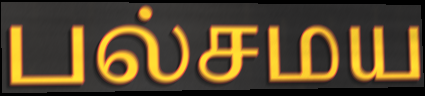
பல்சமய